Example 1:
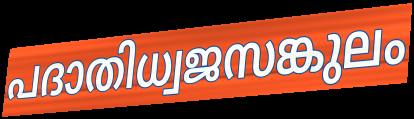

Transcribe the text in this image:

പദാതിധ്വജസങ്കുലം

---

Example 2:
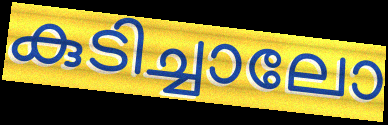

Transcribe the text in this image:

കുടിച്ചാലോ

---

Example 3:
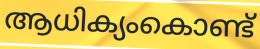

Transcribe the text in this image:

ആധിക്യംകൊണ്ട്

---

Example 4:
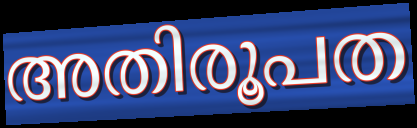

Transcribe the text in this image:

അതിരൂപത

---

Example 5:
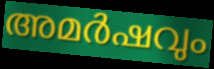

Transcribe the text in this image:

അമർഷവും